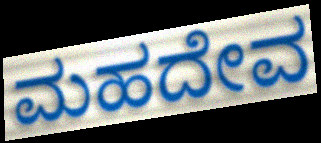
ಮಹದೇವ